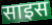
साइस